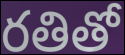
రతితో